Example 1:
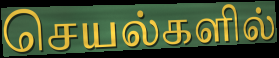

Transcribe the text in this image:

செயல்களில்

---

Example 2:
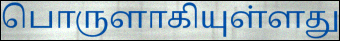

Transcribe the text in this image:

பொருளாகியுள்ளது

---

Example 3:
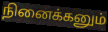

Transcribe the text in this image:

நினைக்கனும்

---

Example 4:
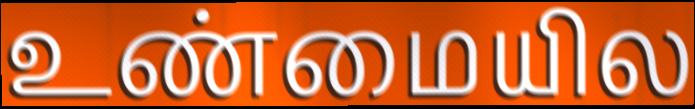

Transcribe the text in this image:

உண்மையில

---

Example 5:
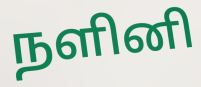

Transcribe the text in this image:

நளினி